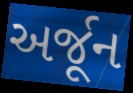
અર્જૂન